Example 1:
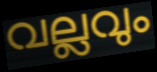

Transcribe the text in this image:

വല്ലവും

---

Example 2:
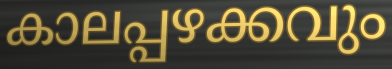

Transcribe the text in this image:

കാലപ്പഴക്കവും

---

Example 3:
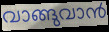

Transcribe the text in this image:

വാങ്ങുവാൻ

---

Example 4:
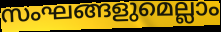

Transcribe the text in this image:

സംഘങ്ങളുമെല്ലാം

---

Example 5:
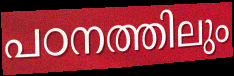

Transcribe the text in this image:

പഠനത്തിലും